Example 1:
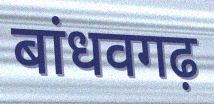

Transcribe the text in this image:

बांधवगढ़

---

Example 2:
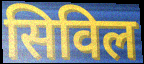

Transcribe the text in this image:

सिविल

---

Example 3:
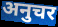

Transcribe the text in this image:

अनुचर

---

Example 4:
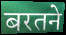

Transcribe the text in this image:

बरतने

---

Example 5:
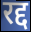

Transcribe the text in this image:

रद्द